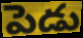
పెడు